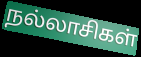
நல்லாசிகள்